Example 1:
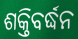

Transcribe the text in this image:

ଶକ୍ତିବର୍ଦ୍ଧନ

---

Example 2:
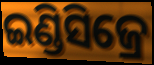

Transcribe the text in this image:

ଇଣ୍ଡିସିଜ୍ରେ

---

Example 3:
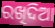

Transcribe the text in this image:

ରଖିଦିଆ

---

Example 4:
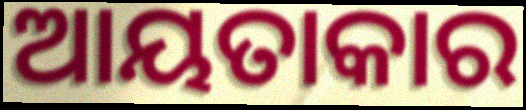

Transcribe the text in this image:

ଆୟତାକାର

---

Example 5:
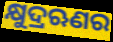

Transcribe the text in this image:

କ୍ଷୁଦ୍ରଋଣର